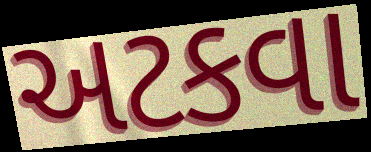
અટકવા